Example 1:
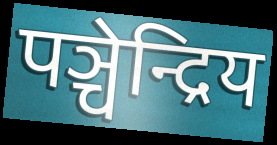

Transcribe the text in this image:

पञ्चेन्द्रिय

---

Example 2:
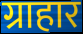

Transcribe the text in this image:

ग्राहार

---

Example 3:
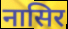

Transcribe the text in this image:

नासिर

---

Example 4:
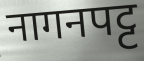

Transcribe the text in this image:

नागनपट्ट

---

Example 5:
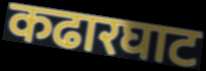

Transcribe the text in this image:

कढारघाट